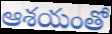
ఆశయంతో